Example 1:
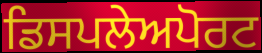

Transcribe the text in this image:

ਡਿਸਪਲੇਅਪੋਰਟ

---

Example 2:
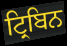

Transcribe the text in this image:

ਟ੍ਰਿਬਿਨ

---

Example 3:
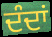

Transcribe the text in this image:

ਦੰਦਾਂ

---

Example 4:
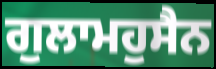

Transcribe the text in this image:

ਗੁਲਾਮਹੁਸੈਨ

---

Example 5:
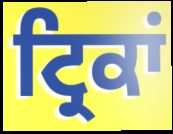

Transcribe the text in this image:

ਟ੍ਰਿਕਾਂ